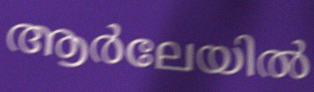
ആർലേയിൽ